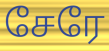
சேரே